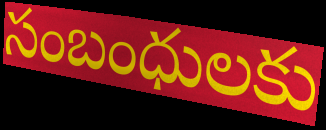
సంబంధులకు